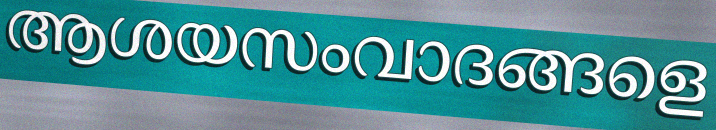
ആശയസംവാദങ്ങളെ